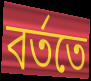
বর্ততে